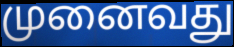
முனைவது